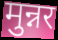
मुन्नर